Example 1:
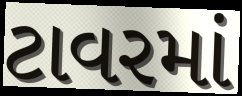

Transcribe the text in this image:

ટાવરમાં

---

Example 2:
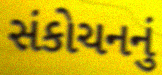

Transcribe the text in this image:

સંકોચનનું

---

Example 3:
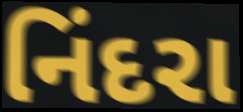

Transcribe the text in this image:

નિંદરા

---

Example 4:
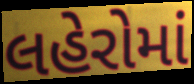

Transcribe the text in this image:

લહેરોમાં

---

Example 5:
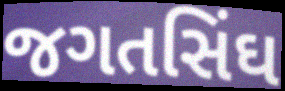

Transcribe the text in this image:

જગતસિંઘ